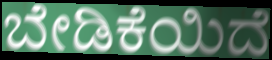
ಬೇಡಿಕೆಯಿದೆ